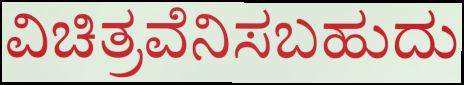
ವಿಚಿತ್ರವೆನಿಸಬಹುದು